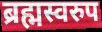
ब्रह्मस्वरुप